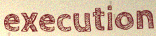
execution